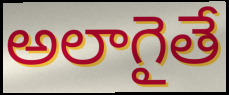
అలాగైతే